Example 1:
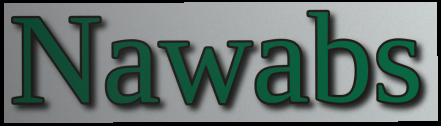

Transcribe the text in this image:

Nawabs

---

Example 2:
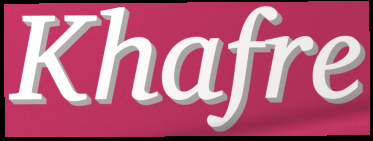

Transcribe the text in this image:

Khafre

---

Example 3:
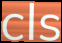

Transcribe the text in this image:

cls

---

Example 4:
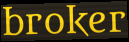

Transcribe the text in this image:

broker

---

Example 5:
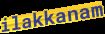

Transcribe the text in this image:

ilakkanam